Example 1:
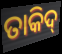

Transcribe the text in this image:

ତାକିଦ୍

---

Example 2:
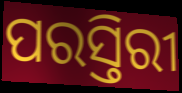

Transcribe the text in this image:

ପରସ୍ତିରୀ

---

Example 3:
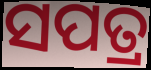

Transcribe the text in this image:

ସପତ୍ର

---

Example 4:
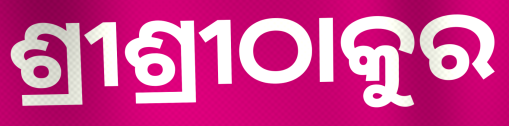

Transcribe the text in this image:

ଶ୍ରୀଶ୍ରୀଠାକୁର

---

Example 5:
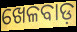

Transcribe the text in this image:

ଖେଳବାଡ଼